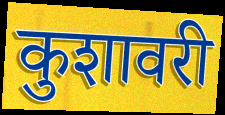
कुशावरी